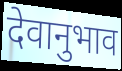
देवानुभाव